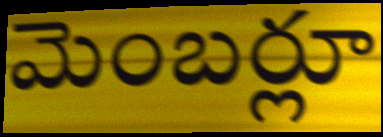
మెంబర్లూ